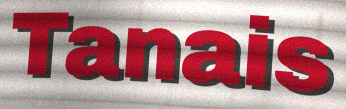
Tanais